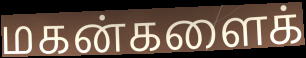
மகன்களைக்